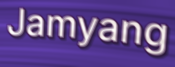
Jamyang